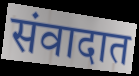
संवादात